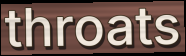
throats